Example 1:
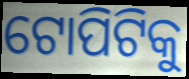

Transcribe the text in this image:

ଟୋପିଟିକୁ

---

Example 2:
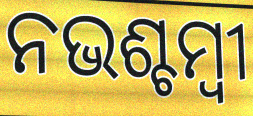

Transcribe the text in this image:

ନଭଶ୍ଚମ୍ବୀ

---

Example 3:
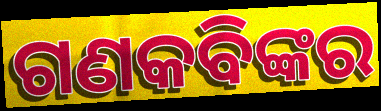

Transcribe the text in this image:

ଗଣକବିଙ୍କର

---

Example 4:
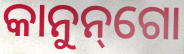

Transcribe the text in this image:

କାନୁନ୍‌ଗୋ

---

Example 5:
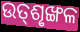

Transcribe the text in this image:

ଉତ୍‌ଶୃଙ୍ଖଳ